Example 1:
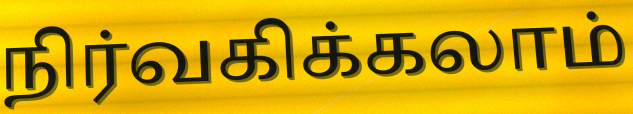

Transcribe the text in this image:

நிர்வகிக்கலாம்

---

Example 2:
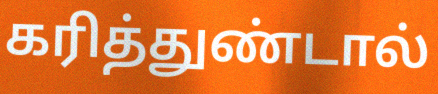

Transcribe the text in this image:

கரித்துண்டால்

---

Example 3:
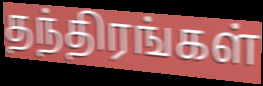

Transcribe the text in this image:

தந்திரங்கள்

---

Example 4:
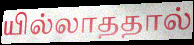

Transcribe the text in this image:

யில்லாததால்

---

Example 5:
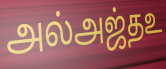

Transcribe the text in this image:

அல்அஜ்தஉ